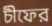
চীফের